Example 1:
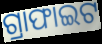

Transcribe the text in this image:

ଗ୍ରାଫାଇଟ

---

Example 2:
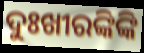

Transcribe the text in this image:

ଦୁଃଖୀରଙ୍କିଙ୍କି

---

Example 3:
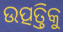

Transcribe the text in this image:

ଉତ୍ପତ୍ତିକୁ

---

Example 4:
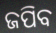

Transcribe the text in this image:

ଜପିବ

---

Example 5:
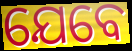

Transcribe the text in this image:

ଯେବେ